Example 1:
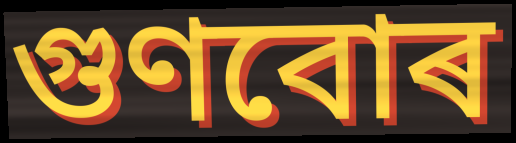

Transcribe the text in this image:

গুণবোৰ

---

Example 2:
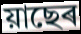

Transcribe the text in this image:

য়াছেৰ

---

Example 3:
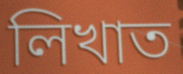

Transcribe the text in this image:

লিখাত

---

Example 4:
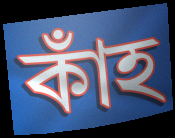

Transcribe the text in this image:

কাঁহ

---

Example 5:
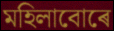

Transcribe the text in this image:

মহিলাবোৰে